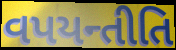
વપયન્તીતિ